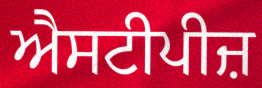
ਐਸਟੀਪੀਜ਼